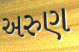
અરુણ